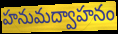
హనుమద్వాహనం